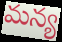
మన్య